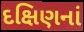
દક્ષિણનાં